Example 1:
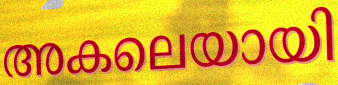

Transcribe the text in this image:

അകലെയായി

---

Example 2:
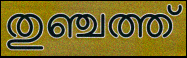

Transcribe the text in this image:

തുഞ്ചത്ത്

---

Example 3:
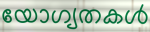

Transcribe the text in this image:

യോഗ്യതകൾ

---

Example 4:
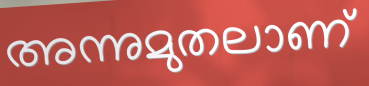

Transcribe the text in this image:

അന്നുമുതലാണ്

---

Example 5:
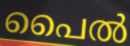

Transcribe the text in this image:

പൈൽ